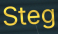
Steg